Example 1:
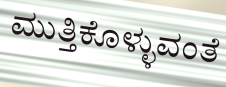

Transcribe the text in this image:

ಮುತ್ತಿಕೊಳ್ಳುವಂತೆ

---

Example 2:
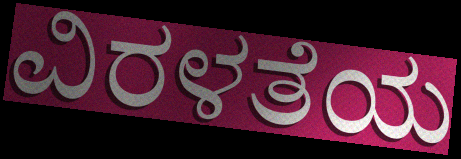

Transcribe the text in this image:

ವಿರಳತೆಯ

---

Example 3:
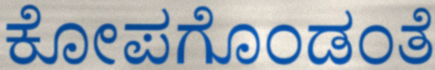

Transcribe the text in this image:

ಕೋಪಗೊಂಡಂತೆ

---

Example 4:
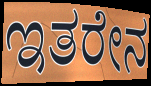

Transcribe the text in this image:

ಇತರೇನ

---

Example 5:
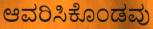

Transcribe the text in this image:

ಆವರಿಸಿಕೊಂಡವು